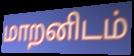
மாறனிடம்